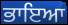
ਭਾਇਆ